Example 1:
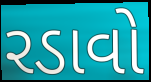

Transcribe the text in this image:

રડાવો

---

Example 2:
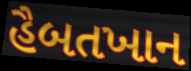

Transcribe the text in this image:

હૈબતખાન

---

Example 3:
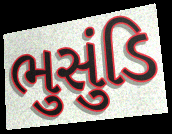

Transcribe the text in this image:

ભુસુંડિ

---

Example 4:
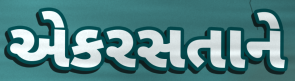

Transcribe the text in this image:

એકરસતાને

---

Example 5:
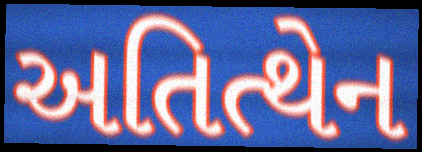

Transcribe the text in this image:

અતિત્થેન